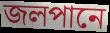
জলপানে